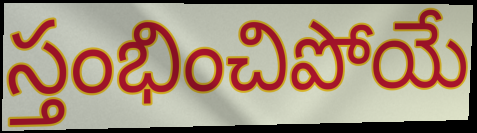
స్తంభించిపోయే